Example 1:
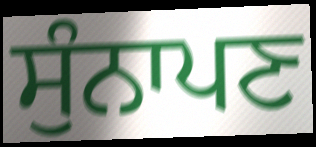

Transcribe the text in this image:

ਸੁੰਨਾਪਣ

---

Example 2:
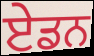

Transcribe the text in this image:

ਏਡਨ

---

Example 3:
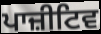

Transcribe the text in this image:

ਪਾਜ਼ੀਟਿਵ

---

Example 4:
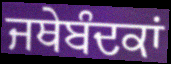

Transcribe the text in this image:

ਜਥੇਬੰਦਕਾਂ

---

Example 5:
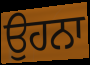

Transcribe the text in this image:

ਉਹਨਾ